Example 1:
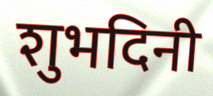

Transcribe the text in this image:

शुभदिनी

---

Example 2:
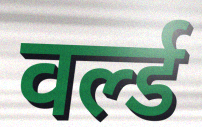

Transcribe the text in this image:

वर्ल्ड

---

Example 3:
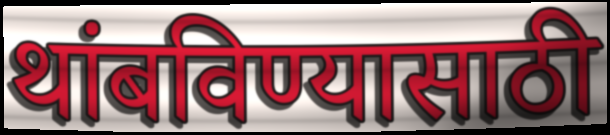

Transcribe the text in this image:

थांबविण्यासाठी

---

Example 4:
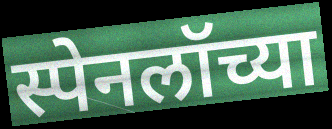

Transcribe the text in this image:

स्पेनलॉच्या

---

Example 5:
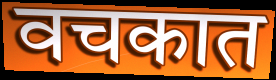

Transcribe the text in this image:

वचकात